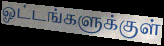
ஓட்டங்களுக்குள்